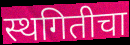
स्थगितीचा